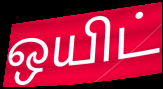
ஒயிட்